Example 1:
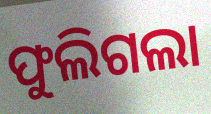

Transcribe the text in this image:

ଫୁଲିଗଲା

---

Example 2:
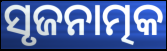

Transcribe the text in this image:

ସୃଜନାତ୍ମକ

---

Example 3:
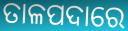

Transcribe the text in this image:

ତାଳପଦାରେ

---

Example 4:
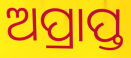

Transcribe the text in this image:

ଅପ୍ରାପ୍ତ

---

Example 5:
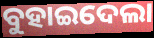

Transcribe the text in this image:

ବୁହାଇଦେଲା